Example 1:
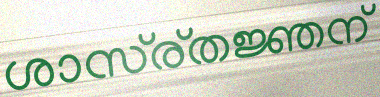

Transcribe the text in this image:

ശാസ്ര്തജ്ഞന്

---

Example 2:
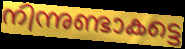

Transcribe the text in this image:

നിന്നുണ്ടാകട്ടെ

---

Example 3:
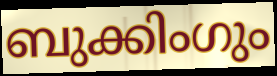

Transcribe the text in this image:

ബുക്കിംഗും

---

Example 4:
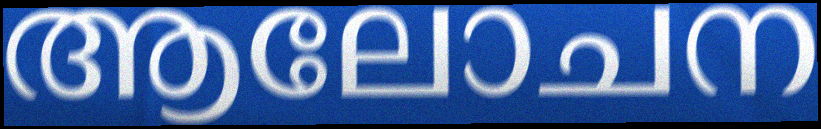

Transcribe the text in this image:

ആലോചന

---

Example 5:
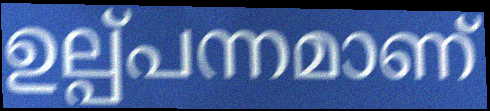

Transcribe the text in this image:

ഉല്പ്പന്നമാണ്